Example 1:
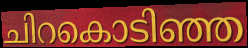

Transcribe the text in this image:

ചിറകൊടിഞ്ഞ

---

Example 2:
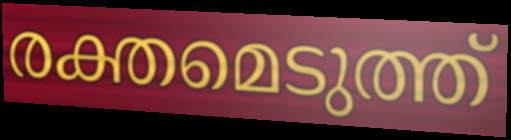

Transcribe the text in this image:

രക്തമെടുത്ത്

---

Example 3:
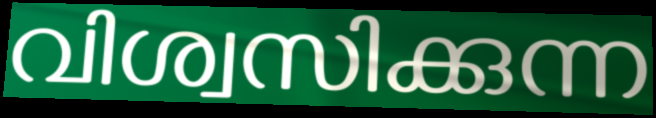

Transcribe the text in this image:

വിശ്വസിക്കുന്ന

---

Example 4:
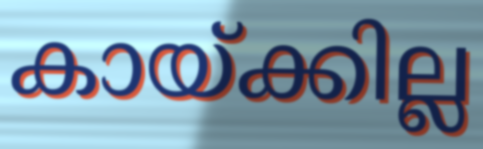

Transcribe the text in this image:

കായ്ക്കില്ല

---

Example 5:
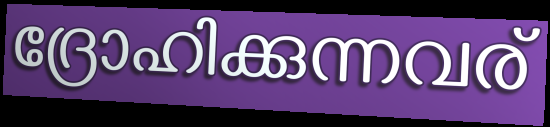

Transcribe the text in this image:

ദ്രോഹിക്കുന്നവര്